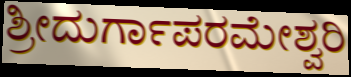
ಶ್ರೀದುರ್ಗಾಪರಮೇಶ್ವರಿ